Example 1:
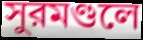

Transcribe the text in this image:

সুরমণ্ডলে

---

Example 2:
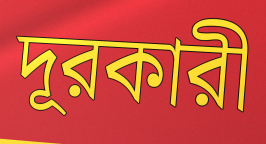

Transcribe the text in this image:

দূরকারী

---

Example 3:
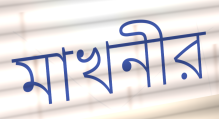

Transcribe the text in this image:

মাখনীর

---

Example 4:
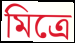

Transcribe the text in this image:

মিত্রে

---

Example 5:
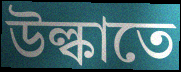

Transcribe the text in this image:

উল্কাতে